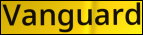
Vanguard